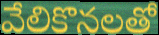
వేలికొనలతో